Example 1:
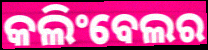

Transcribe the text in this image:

କଲିଂବେଲର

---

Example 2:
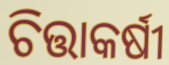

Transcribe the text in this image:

ଚିତ୍ତାକର୍ଷୀ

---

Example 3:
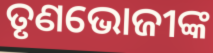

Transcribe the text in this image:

ତୃଣଭୋଜୀଙ୍କ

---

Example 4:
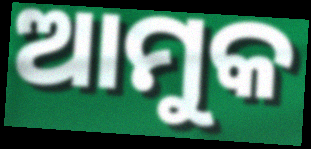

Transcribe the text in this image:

ଆମୁକ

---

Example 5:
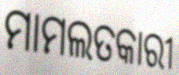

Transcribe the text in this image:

ମାମଲତକାରୀ